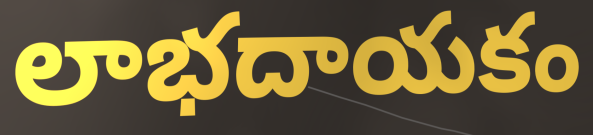
లాభదాయకం